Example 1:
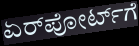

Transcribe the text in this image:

ಏರ್‌ಪೋರ್ಟ್‌ಗೆ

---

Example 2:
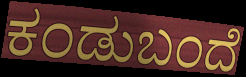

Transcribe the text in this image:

ಕಂಡುಬಂದೆ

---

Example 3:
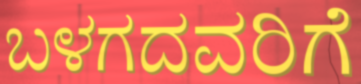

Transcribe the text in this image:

ಬಳಗದವರಿಗೆ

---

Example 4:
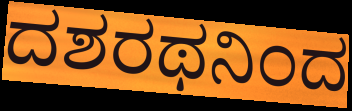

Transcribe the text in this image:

ದಶರಥನಿಂದ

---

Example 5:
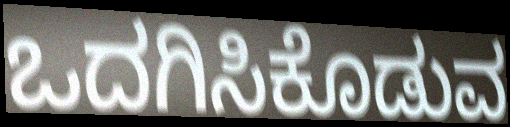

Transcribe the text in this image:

ಒದಗಿಸಿಕೊಡುವ